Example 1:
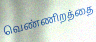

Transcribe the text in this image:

வெண்ணிறத்தை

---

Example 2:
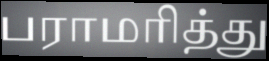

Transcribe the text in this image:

பராமரித்து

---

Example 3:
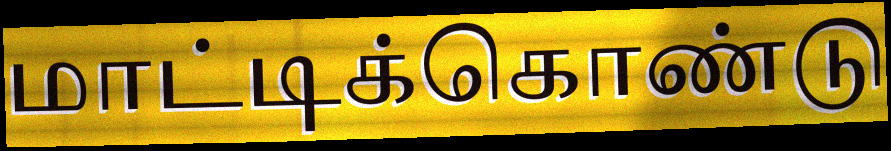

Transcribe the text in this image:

மாட்டிக்கொண்டு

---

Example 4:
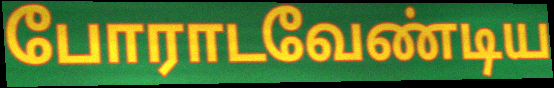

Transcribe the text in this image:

போராடவேண்டிய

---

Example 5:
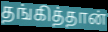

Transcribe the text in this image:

தங்கித்தான்